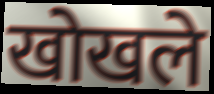
खोखले